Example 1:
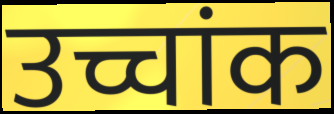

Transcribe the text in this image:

उच्चांक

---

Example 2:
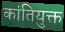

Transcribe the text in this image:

कांतियुक्त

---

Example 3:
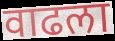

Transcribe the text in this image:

वाढला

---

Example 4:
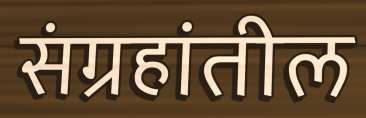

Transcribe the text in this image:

संग्रहांतील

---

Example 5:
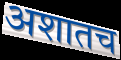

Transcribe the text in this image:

अशातच